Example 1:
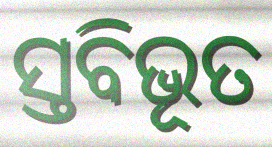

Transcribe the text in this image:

ସ୍ତବିଭୂତ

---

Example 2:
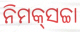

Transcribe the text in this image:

ନିମକ୍‍ସଚ୍ଚା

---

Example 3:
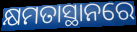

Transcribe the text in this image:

କ୍ଷମତାସ୍ଥାନରେ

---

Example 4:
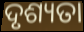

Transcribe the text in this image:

ଦୃଶ୍ୟତା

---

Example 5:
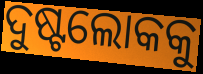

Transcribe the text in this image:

ଦୁଷ୍ଟଲୋକକୁ